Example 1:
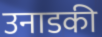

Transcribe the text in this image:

उनाडकी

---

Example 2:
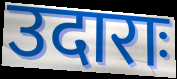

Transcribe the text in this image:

उदाराः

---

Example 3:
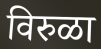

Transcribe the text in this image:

विरुळा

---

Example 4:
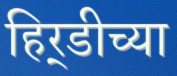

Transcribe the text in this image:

हिर्डीच्या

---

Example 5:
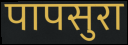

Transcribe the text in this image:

पापसुरा